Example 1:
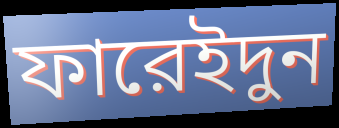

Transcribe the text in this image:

ফারেইদুন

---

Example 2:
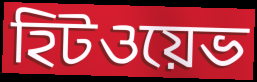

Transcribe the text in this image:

হিটওয়েভ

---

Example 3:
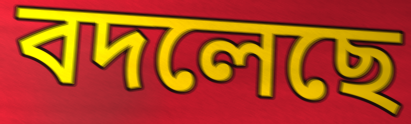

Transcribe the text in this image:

বদলেছে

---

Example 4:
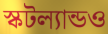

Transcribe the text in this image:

স্কটল্যান্ডও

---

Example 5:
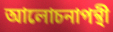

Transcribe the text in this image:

আলোচনাপন্থী